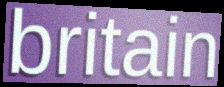
britain